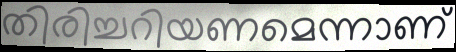
തിരിച്ചറിയണമെന്നാണ്